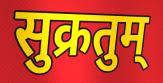
सुक्रतुम्